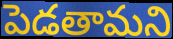
పెడతామని